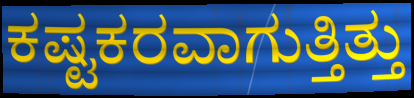
ಕಷ್ಟಕರವಾಗುತ್ತಿತ್ತು